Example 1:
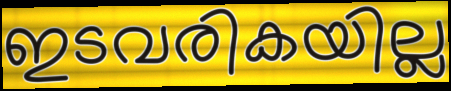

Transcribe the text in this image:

ഇടവരികയില്ല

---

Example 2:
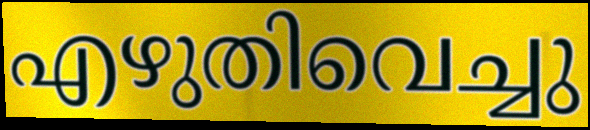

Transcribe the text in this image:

എഴുതിവെച്ചു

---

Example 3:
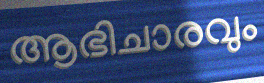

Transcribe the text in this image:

ആഭിചാരവും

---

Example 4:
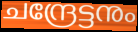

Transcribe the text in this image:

ചന്ദ്രേട്ടനും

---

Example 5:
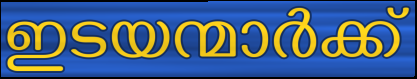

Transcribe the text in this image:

ഇടയന്മാർക്ക്